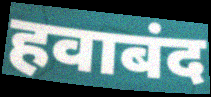
हवाबंद